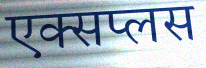
एक्सप्लस